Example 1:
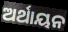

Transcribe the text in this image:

ଅର୍ଥାୟନ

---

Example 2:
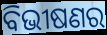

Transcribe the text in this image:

ବିଭୀଷଣର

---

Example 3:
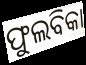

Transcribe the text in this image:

ଫୁଲବିକା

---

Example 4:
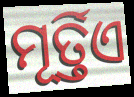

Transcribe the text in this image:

ମୂର୍ତ୍ତିଏ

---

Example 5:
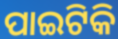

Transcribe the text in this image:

ପାଇଟିକି